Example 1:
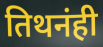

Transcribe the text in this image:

तिथनंही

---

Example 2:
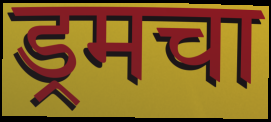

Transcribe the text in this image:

ड्रमचा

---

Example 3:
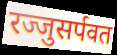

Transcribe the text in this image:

रज्जुसर्पवत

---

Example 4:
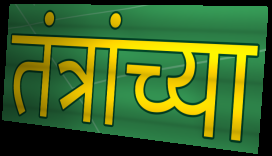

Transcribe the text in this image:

तंत्रांच्या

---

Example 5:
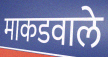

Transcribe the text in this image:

माकडवाले